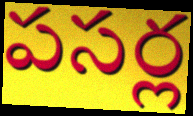
పసర్ల